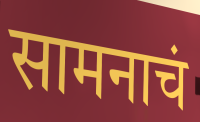
सामनाचं